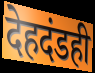
देहदंडही